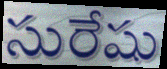
సురేషు